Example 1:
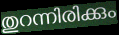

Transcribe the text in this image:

തുറന്നിരിക്കും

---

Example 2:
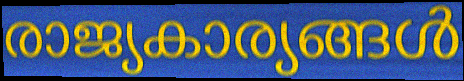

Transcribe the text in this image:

രാജ്യകാര്യങ്ങൾ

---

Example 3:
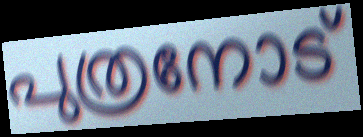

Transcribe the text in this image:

പുത്രനോട്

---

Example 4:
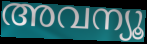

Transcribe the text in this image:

അവന്യൂ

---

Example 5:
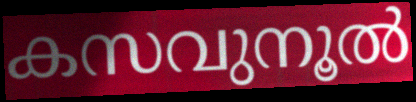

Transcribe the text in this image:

കസവുനൂൽ